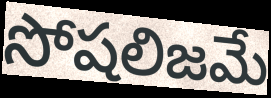
సోషలిజమే